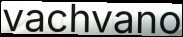
vachvano